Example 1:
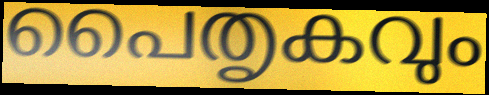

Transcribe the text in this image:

പൈതൃകവും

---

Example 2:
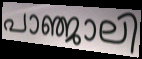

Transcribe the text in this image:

പാഞ്ജാലി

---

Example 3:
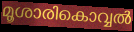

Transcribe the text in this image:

മൂശാരികൊവ്വൽ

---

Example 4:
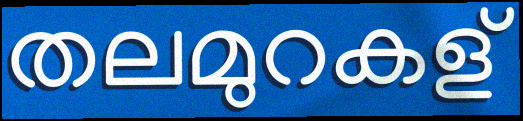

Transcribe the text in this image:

തലമുറകള്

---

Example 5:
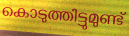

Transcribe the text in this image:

കൊടുത്തിട്ടുമുണ്ട്